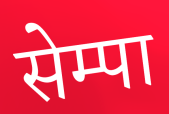
सेम्पा